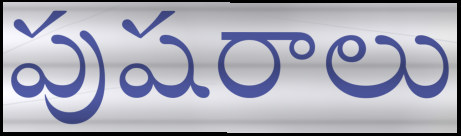
పుషరాలు